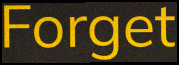
Forget